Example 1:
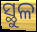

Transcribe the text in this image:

ସ୍ଥୁଳ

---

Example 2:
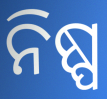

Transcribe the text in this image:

ନିଷ୍ପ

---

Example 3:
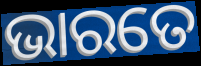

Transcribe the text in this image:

ଭାରତେ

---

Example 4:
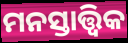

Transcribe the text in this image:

ମନସ୍ତାତ୍ତ୍ଵିକ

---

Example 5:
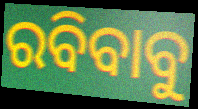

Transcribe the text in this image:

ରବିବାବୁ